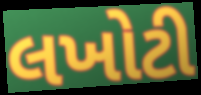
લખોટી